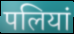
पलियां